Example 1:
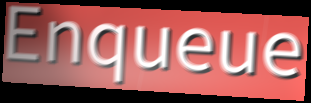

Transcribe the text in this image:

Enqueue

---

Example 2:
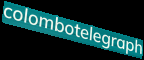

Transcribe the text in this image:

colombotelegraph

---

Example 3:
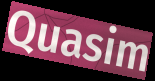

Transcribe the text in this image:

Quasim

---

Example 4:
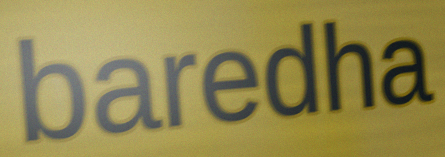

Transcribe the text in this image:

baredha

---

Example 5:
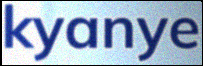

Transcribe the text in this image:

kyanye